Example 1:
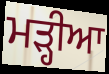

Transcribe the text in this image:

ਮੜ੍ਹੀਆ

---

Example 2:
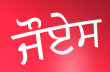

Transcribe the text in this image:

ਜੌਏਸ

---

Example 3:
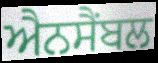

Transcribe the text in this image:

ਐਨਸੈਂਬਲ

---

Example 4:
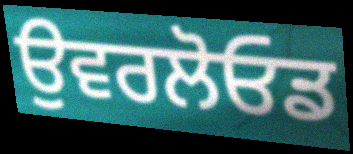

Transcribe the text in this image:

ਉਵਰਲੋਓਡ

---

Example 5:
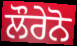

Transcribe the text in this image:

ਲੌਰੇਨੋ